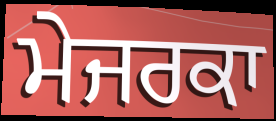
ਮੇਜਰਕਾ